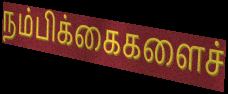
நம்பிக்கைகளைச்